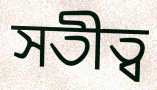
সতীত্ব